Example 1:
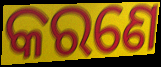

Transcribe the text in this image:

କରଣେ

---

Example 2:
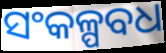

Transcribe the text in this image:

ସଂକଳ୍ପବଧ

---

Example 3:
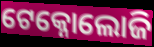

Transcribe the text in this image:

ଟେକ୍ନୋଲୋଜି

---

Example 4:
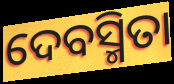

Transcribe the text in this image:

ଦେବସ୍ମିତା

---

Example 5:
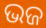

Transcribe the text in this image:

ଭଜ